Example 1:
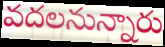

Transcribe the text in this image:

వదలనున్నారు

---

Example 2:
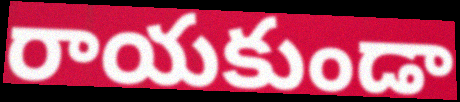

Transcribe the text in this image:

రాయకుండా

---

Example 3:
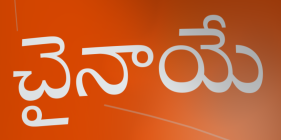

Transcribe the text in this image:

చైనాయే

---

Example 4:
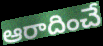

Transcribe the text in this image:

ఆరాదించే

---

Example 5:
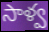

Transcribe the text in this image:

సాళ్వ